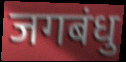
जगबंधु